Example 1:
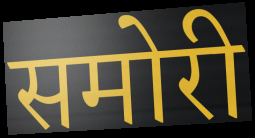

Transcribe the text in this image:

समोरी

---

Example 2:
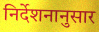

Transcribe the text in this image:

निर्देशनानुसार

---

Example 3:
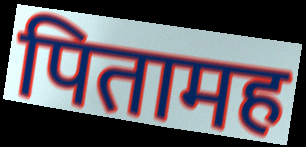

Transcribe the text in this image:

पितामह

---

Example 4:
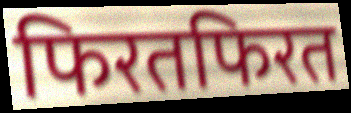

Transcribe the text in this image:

फिरतफिरत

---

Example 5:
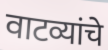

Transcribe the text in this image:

वाटव्यांचे